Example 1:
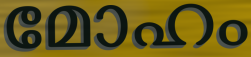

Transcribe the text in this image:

മോഹം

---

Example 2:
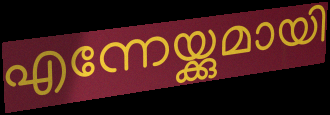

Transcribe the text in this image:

എന്നേയ്ക്കുമായി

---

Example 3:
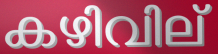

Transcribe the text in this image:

കഴിവില്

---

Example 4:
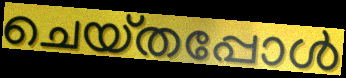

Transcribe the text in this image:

ചെയ്‌തപ്പോൾ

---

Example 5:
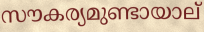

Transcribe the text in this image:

സൗകര്യമുണ്ടായാല്